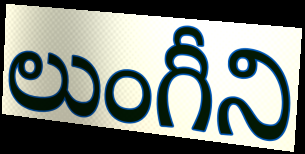
లుంగీని